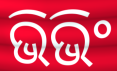
ଭିଭିଂ